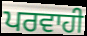
ਪਰਵਾਹੀ